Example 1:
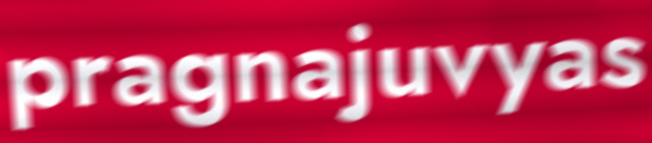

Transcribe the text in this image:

pragnajuvyas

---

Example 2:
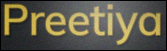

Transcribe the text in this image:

Preetiya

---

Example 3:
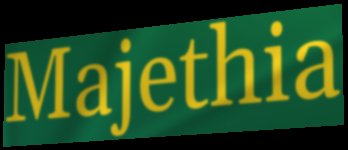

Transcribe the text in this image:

Majethia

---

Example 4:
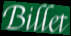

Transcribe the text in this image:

Billet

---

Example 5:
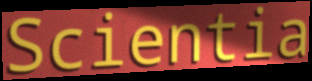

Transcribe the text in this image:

Scientia